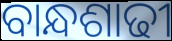
ବାନ୍ଧଶାଢୀ